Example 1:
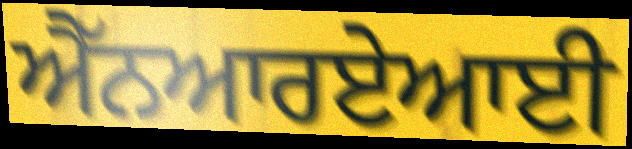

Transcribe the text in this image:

ਐੱਨਆਰਏਆਈ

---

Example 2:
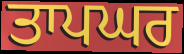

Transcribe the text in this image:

ਤਾਪਘਰ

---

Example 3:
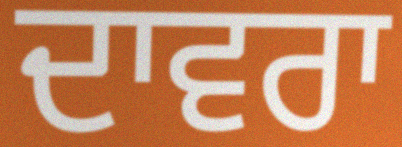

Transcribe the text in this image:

ਦਾਵਰਾ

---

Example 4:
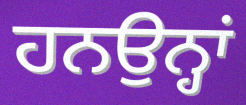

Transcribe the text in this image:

ਹਨਉਨ੍ਹਾਂ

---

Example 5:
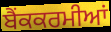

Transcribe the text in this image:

ਬੈਂਕਕਰਮੀਆਂ